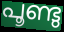
പൂണ്ടു